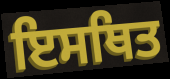
ਇਸਥਿਤ